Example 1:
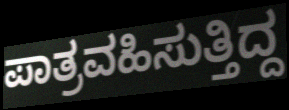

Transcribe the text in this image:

ಪಾತ್ರವಹಿಸುತ್ತಿದ್ದ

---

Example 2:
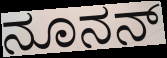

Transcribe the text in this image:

ನೂನನ್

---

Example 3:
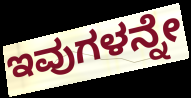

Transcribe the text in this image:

ಇವುಗಳನ್ನೇ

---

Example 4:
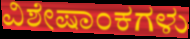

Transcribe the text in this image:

ವಿಶೇಷಾಂಕಗಳು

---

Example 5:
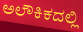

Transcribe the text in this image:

ಅಲೌಕಿಕದಲ್ಲಿ